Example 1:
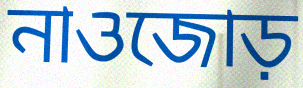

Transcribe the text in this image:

নাওজোড়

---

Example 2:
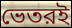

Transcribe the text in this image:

ভেতরই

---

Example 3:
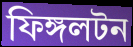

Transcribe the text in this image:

ফিঙ্গলটন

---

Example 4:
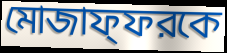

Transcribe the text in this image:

মোজাফ্ফরকে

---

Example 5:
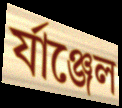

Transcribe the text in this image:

র্যাঞ্জেল